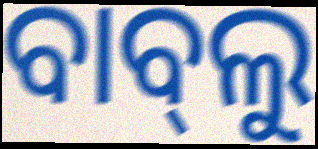
ବାବ୍‍ଲୁ